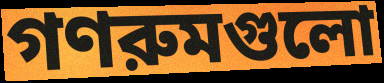
গণরুমগুলো